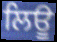
ਲਿਊ